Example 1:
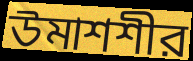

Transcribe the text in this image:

উমাশশীর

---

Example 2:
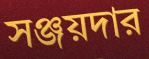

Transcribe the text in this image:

সঞ্জয়দার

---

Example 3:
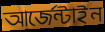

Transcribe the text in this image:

আর্জেন্টাইন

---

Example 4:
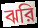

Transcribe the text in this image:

ঝরি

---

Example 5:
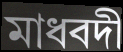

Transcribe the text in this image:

মাধবদী